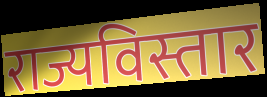
राज्यविस्तार